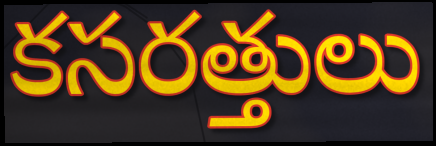
కసరత్తులు